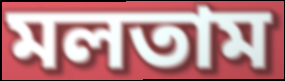
মলতাম